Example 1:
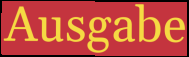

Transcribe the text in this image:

Ausgabe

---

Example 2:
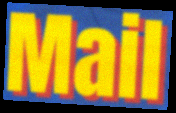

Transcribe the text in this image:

Mail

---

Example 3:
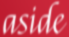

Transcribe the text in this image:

aside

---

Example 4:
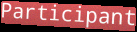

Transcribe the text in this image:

Participant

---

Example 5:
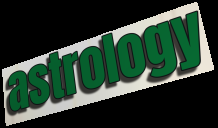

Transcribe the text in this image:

astrology